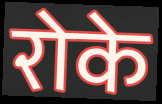
रोके